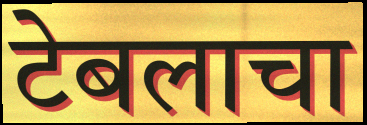
टेबलाचा